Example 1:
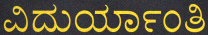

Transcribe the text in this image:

ವಿದುರ್ಯಾಂತಿ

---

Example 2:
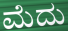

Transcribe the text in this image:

ಮೆದು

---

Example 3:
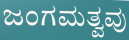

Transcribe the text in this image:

ಜಂಗಮತ್ವವು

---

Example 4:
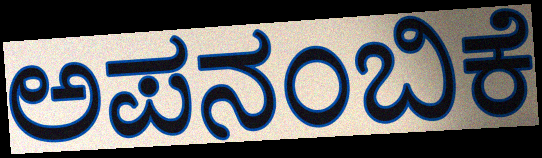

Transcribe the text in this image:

ಅಪನಂಬಿಕೆ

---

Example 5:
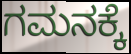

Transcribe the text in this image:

ಗಮನಕ್ಕೆ